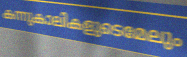
കന്നുകാലികളുടെമേലും